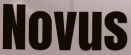
Novus